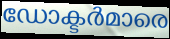
ഡോക്ടർമാരെ